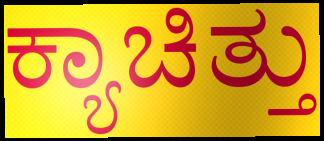
ಕ್ಯಾಚಿತ್ತು